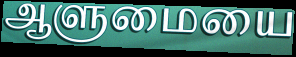
ஆளுமையை